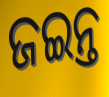
ଜଇନ୍ତ